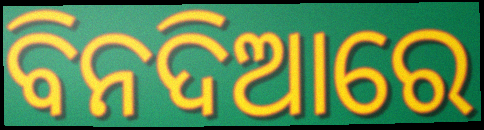
ବିନଦିଆରେ